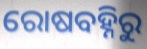
ରୋଷବହ୍ନିରୁ